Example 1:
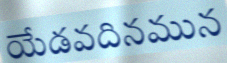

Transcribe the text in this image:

యేడవదినమున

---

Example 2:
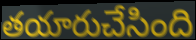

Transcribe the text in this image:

తయారుచేసింది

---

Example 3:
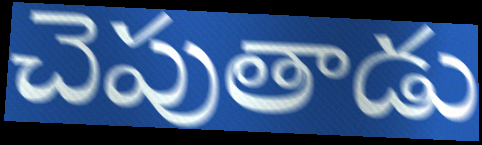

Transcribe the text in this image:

చెపుతాడు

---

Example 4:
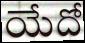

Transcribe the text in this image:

యేదో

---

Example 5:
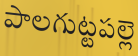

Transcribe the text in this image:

పాలగుట్టపల్లె